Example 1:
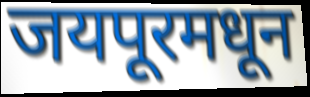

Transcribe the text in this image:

जयपूरमधून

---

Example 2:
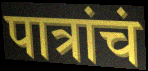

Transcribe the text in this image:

पात्रांचं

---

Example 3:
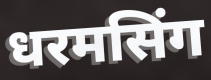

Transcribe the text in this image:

धरमसिंग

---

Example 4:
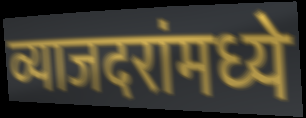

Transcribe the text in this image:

व्याजदरांमध्ये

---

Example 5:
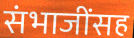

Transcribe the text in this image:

संभाजींसह